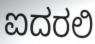
ಐದರಲಿ